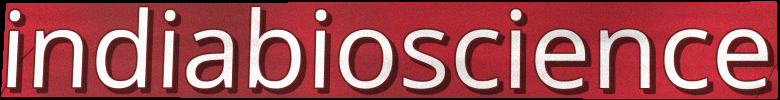
indiabioscience